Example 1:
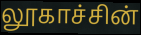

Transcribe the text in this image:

லூகாச்சின்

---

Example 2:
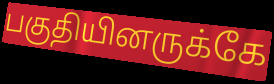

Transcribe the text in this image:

பகுதியினருக்கே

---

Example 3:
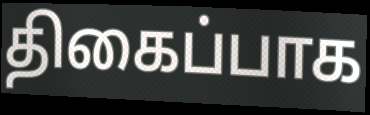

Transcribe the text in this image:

திகைப்பாக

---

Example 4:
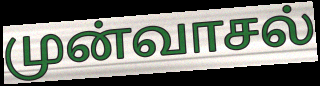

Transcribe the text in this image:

முன்வாசல்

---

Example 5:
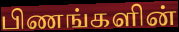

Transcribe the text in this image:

பிணங்களின்